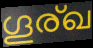
ഗൂര്ഖ